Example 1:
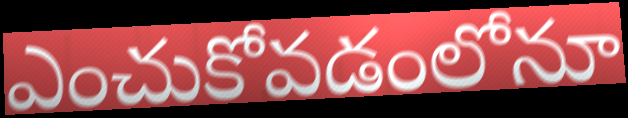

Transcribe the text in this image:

ఎంచుకోవడంలోనూ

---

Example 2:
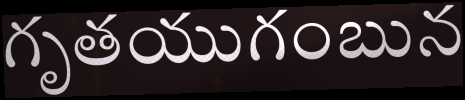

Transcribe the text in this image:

గృతయుగంబున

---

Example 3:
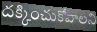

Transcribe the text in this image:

దక్కించుకోవాలని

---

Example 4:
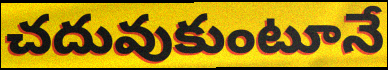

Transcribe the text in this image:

చదువుకుంటూనే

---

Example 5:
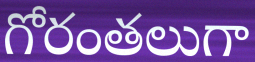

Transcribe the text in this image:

గోరంతలుగా